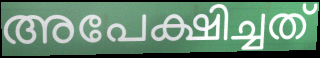
അപേക്ഷിച്ചത്